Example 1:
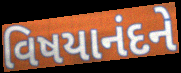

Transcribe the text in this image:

વિષયાનંદને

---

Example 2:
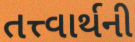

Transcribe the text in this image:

તત્ત્વાર્થની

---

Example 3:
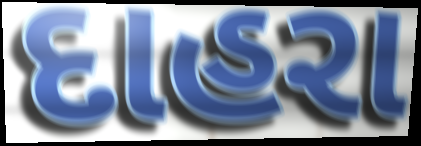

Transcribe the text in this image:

દાહરા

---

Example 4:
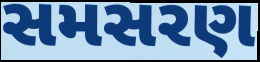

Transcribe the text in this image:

સમસરણ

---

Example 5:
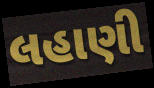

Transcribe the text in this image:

લહાણી